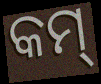
କମ୍